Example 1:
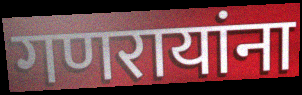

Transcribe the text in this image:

गणरायांना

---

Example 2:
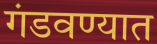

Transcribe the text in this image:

गंडवण्यात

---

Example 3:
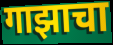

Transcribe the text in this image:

गाझाचा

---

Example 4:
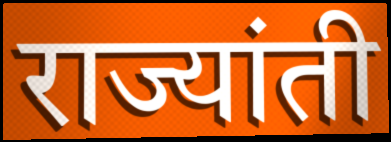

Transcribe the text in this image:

राज्यांती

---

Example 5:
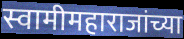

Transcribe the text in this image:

स्वामीमहाराजांच्या